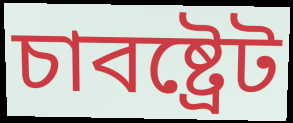
চাবষ্ট্ৰেট